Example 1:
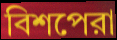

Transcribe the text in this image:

বিশপেরা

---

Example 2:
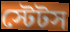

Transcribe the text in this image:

স্টেটস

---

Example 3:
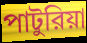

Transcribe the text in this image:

পাটুরিয়া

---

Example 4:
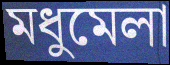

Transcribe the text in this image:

মধুমেলা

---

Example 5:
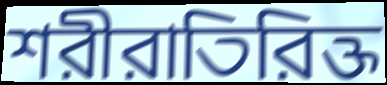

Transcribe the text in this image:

শরীরাতিরিক্ত